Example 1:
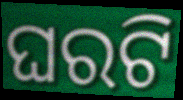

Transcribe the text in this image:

ଘରଟି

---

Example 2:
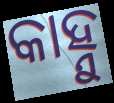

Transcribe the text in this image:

କାହ୍ନୁ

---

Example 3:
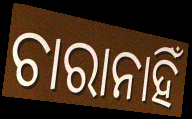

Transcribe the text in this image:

ଚାରାନାହିଁ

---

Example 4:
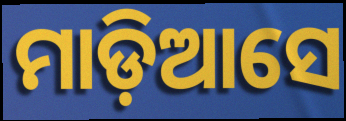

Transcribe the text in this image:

ମାଡ଼ିଆସେ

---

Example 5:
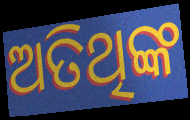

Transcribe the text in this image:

ଅତିଥିଙ୍କ